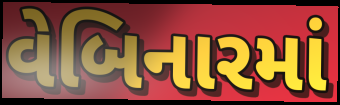
વેબિનારમાં